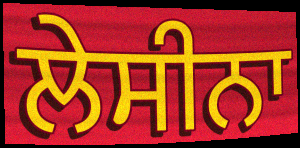
ਲੇਸੀਨਾ